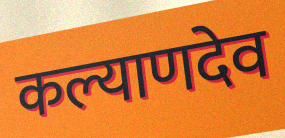
कल्याणदेव